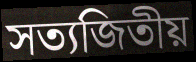
সত্যজিতীয়